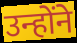
उन्‍होंने